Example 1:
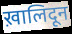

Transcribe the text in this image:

ख़ालिदून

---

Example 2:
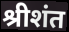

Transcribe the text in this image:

श्रीशंत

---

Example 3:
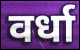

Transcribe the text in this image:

वर्धा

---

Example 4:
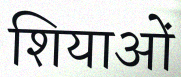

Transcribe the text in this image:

शियाओं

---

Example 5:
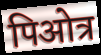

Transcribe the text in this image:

पिओत्र